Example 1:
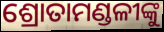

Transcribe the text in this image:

ଶ୍ରୋତାମଣ୍ଡଳୀଙ୍କୁ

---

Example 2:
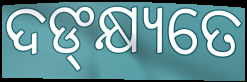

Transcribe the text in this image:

ଦଙ୍କ୍ଷ୍ଯତେ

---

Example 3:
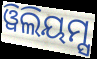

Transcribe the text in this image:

ୱିଲିୟମ୍ସ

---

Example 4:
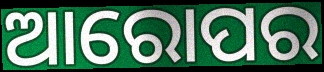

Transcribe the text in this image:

ଆରୋପର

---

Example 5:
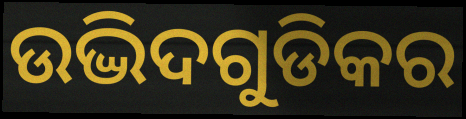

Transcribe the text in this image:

ଉଦ୍ଭିଦଗୁଡିକର